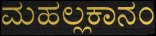
ಮಹಲ್ಲಕಾನಂ